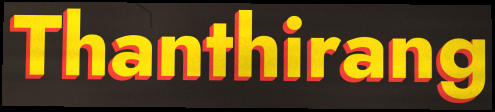
Thanthirang